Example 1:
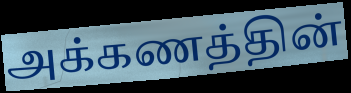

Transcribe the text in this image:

அக்கணத்தின்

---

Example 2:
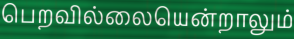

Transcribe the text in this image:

பெறவில்லையென்றாலும்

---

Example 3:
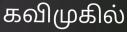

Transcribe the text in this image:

கவிமுகில்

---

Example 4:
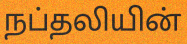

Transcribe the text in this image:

நப்தலியின்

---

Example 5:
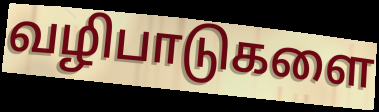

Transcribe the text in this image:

வழிபாடுகளை